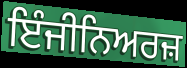
ਇੰਜੀਨਿਅਰਜ਼